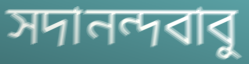
সদানন্দবাবু